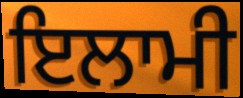
ਇਲਾਮੀ